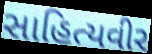
સાહિત્યવીર